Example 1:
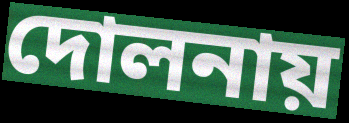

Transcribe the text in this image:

দোলনায়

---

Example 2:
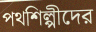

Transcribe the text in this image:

পথশিল্পীদের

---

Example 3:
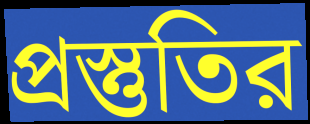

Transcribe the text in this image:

প্রস্তুতির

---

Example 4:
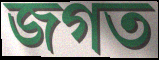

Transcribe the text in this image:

জগত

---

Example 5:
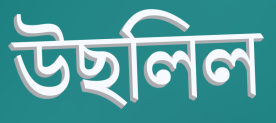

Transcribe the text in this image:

উছলিল